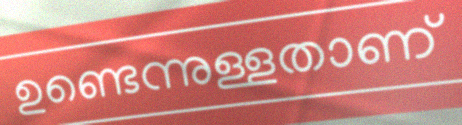
ഉണ്ടെന്നുള്ളതാണ്